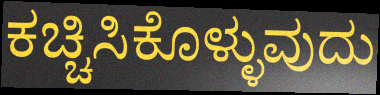
ಕಚ್ಚಿಸಿಕೊಳ್ಳುವುದು